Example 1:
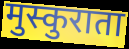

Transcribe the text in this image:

मुस्कुराता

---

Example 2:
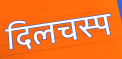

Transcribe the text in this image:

दिलचस्प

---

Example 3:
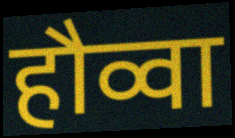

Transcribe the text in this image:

हौव्वा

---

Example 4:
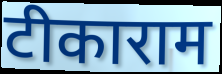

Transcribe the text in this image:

टीकाराम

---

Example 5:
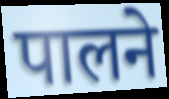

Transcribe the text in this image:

पालने